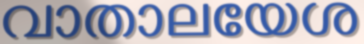
വാതാലയേശ